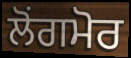
ਲੋਂਗਮੋਰ